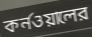
কর্নওয়ালের